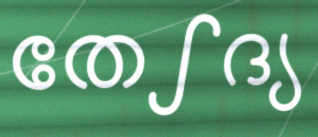
തേഽദ്യ